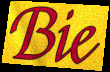
Bie